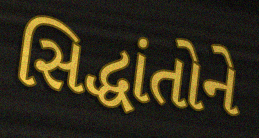
સિદ્ધાંતોને